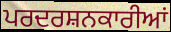
ਪਰਦਰਸ਼ਨਕਾਰੀਆਂ